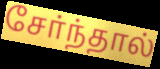
சேர்ந்தால்